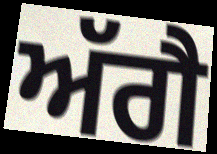
ਅੱਗੈ